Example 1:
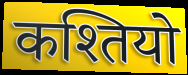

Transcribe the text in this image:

कश्तियो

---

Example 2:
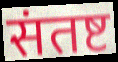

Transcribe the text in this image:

संतष्ट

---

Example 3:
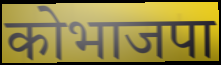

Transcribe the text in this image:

कोभाजपा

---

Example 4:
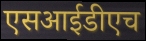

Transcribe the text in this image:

एसआईडीएच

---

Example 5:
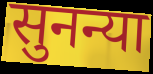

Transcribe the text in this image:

सुनन्या